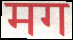
मग